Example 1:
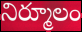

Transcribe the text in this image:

నిర్మూలం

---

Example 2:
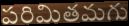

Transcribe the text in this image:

పరిమితమగు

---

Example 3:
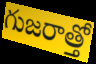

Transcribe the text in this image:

గుజరాత్తో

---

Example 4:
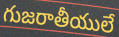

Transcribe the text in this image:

గుజరాతీయులే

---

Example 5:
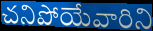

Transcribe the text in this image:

చనిపోయేవారిని